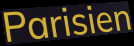
Parisien